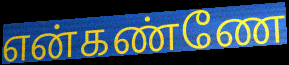
என்கண்ணே